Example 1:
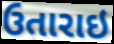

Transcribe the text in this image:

ઉતારાઇ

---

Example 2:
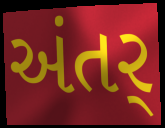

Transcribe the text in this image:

અંતર્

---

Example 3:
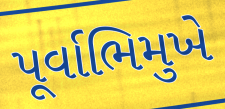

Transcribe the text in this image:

પૂર્વાભિમુખે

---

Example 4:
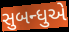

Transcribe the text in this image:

સુબન્ધુએ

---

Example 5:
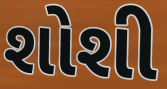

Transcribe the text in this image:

શોશી